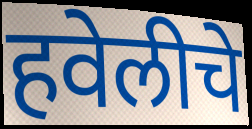
हवेलीचे